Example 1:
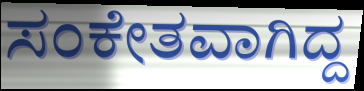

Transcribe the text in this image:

ಸಂಕೇತವಾಗಿದ್ದ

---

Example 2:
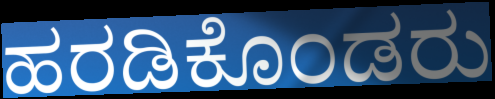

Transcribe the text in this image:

ಹರಡಿಕೊಂಡರು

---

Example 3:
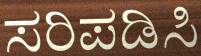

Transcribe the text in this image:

ಸರಿಪಡಿಸಿ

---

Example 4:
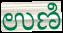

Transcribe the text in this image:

ಉಣಿ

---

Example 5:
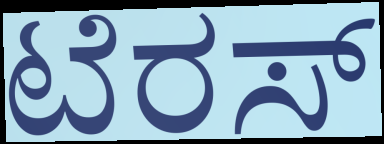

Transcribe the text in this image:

ಟೆರಸ್